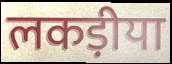
लकड़ीया